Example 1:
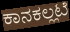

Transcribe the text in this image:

ಕಾನಕಲ್ಲಟೆ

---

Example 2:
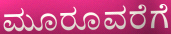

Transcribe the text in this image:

ಮೂರೂವರೆಗೆ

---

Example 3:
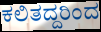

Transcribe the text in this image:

ಕಲಿತದ್ದರಿಂದ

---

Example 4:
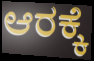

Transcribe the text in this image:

ಆರಕ್ಕೆ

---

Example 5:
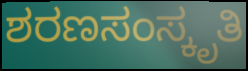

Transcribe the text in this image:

ಶರಣಸಂಸ್ಕೃತಿ